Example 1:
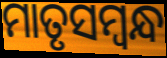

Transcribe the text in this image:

ମାତୃସମ୍ବନ୍ଧ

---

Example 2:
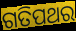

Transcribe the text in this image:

ଗତିପଥର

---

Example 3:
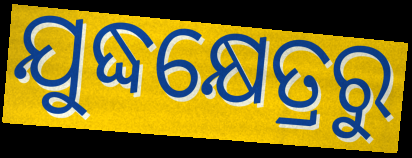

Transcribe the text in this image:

ଯୁଦ୍ଧକ୍ଷେତ୍ରରୁ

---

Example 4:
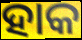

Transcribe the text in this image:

ହାକ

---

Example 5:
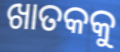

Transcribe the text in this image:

ଖାତକକୁ